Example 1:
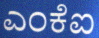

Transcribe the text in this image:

ಎಂಕೆಐ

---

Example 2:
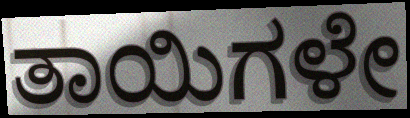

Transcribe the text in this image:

ತಾಯಿಗಳೇ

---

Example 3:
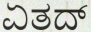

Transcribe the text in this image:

ಏತದ್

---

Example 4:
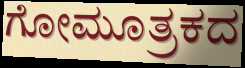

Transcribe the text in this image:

ಗೋಮೂತ್ರಕದ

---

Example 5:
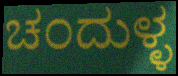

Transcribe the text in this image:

ಚಂದುಳ್ಳ